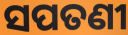
ସପତଣୀ